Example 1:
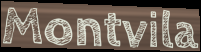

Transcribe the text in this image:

Montvila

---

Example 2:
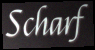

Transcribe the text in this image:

Scharf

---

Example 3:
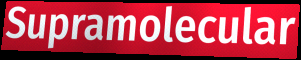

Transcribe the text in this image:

Supramolecular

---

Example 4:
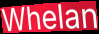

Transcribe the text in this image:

Whelan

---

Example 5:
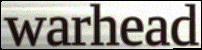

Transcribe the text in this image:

warhead